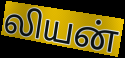
லியன்